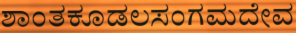
ಶಾಂತಕೂಡಲಸಂಗಮದೇವ